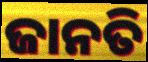
ଜାନତି